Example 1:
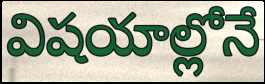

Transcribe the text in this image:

విషయాల్లోనే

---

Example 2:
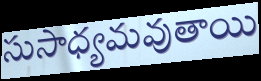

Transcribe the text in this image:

సుసాధ్యమవుతాయి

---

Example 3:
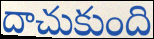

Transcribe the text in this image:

దాచుకుంది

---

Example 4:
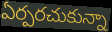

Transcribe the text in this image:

ఏర్పరచుకున్నా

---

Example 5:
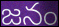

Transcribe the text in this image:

జనం